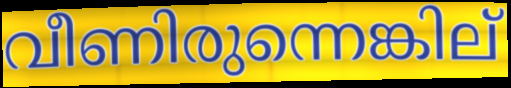
വീണിരുന്നെങ്കില്